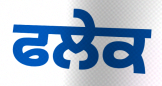
ਫਲੇਕ